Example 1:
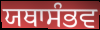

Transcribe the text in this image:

ਯਥਾਸੰਭਵ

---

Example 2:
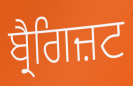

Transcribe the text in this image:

ਬ੍ਰੈਗਿਜ਼ਟ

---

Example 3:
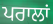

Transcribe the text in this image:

ਪਰਾਲਾਂ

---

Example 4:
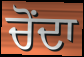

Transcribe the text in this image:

ਚੋਂਦਾ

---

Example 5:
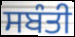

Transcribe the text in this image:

ਸਬੰਤੀ